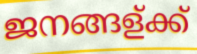
ജനങ്ങള്ക്ക്